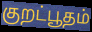
குறட்பூதம்